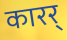
कारर्